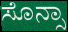
ಸೊನ್ಸಾ